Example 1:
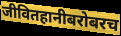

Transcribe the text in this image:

जीवितहानीबरोबरच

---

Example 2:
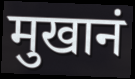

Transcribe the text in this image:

मुखानं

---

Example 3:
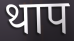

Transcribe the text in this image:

थाप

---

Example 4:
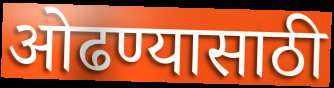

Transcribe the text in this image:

ओढण्यासाठी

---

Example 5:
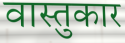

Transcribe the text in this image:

वास्तुकार